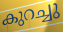
കുറച്ചു